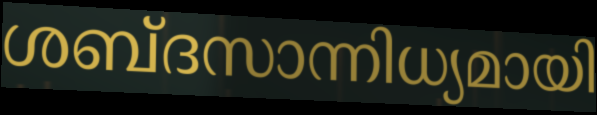
ശബ്ദസാന്നിധ്യമായി